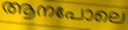
ആനപോലെ